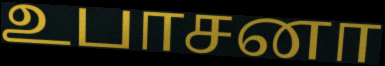
உபாசனா